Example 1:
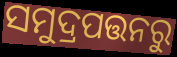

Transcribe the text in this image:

ସମୁଦ୍ରପତ୍ତନରୁ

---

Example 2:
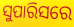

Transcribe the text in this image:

ସୁପାରିସରେ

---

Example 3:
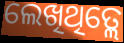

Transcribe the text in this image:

ଲେଖିଥିତ୍ଲେ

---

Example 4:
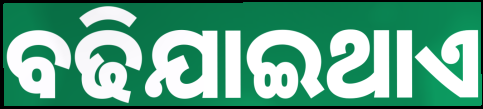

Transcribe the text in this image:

ବଢିଯାଇଥାଏ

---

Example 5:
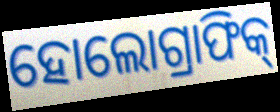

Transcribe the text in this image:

ହୋଲୋଗ୍ରାଫିକ୍